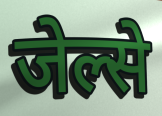
जेल्से